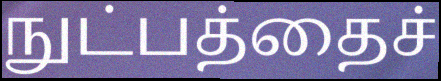
நுட்பத்தைச்